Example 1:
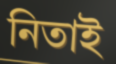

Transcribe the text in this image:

নিতাই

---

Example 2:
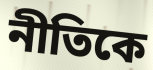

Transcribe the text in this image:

নীতিকে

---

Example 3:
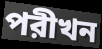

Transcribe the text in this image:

পরীখন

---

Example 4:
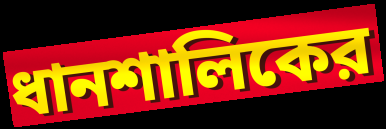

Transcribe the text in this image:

ধানশালিকের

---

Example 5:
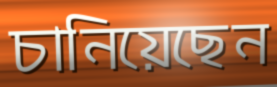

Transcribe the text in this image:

চানিয়েছেন